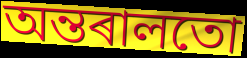
অন্তৰালতো